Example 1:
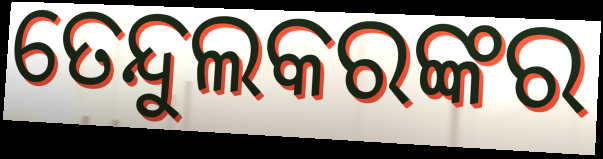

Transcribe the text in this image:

ତେନ୍ଦୁଲକରଙ୍କର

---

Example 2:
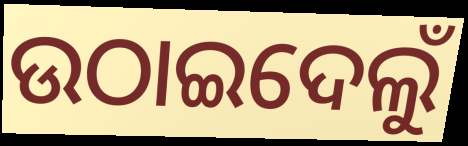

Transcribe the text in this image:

ଉଠାଇଦେଲୁଁ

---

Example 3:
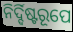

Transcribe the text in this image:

ନିର୍ଦ୍ଦିଷ୍ଟରୂପେ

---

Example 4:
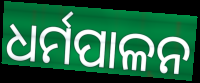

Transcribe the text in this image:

ଧର୍ମପାଳନ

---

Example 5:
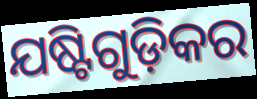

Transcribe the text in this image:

ଯଷ୍ଟିଗୁଡ଼ିକର